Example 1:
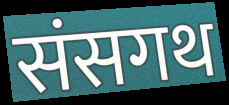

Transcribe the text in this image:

संसगथ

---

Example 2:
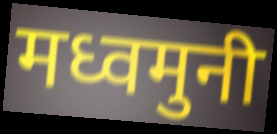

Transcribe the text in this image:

मध्वमुनी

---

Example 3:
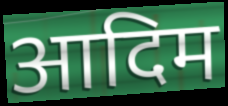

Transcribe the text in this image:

आदिम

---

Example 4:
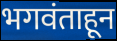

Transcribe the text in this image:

भगवंताहून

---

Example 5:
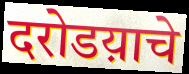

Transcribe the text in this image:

दरोडय़ाचे